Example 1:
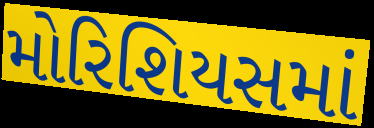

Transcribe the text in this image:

મોરિશિયસમાં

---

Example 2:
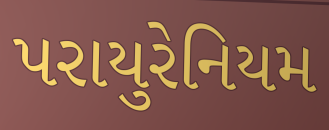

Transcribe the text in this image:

પરાયુરેનિયમ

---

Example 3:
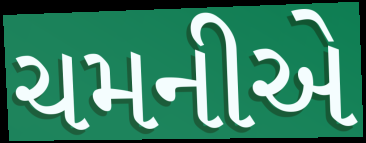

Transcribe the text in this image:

ચમનીએ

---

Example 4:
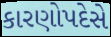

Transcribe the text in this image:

કારણોપદેસે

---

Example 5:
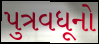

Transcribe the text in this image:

પુત્રવધૂનો